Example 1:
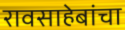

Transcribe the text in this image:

रावसाहेबांचा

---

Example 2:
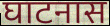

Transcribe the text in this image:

घाटनास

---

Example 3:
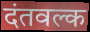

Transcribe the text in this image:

दंतवल्क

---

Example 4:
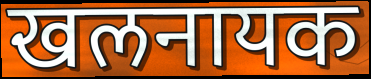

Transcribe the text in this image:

खलनायक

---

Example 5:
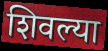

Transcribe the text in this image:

शिवल्या